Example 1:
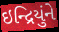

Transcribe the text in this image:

ઇન્દ્રિયુંને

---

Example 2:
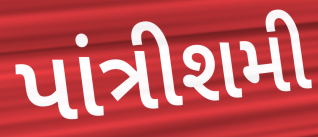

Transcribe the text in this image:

પાંત્રીશમી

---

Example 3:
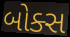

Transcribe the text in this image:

બોક્સ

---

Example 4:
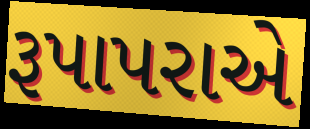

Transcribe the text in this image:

રૂપાપરાએ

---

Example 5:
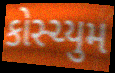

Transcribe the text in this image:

કોસ્ચ્યુમ